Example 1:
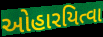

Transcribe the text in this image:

ઓહારયિત્વા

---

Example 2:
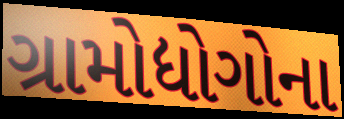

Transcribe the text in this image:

ગ્રામોદ્યોગોના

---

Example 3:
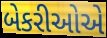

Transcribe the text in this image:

બેકરીઓએ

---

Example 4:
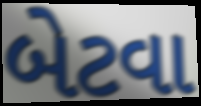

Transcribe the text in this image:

બેટવા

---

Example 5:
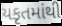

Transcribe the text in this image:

યકૃતમાંથી